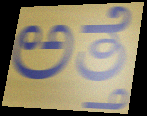
ಅತ್ತೆ